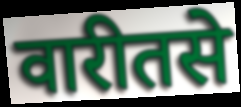
वारीतसे